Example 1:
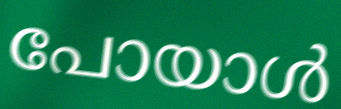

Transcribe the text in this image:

പോയാൾ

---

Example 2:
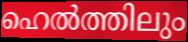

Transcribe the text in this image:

ഹെൽത്തിലും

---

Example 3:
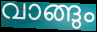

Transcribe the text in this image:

വാങ്ങും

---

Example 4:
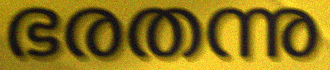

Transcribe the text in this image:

ഭരതന്നു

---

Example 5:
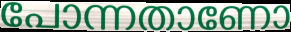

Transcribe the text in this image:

പോന്നതാണോ